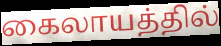
கைலாயத்தில்